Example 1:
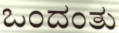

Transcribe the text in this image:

ಒಂದಂತು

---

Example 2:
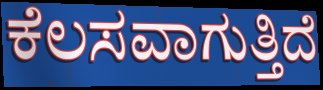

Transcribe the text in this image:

ಕೆಲಸವಾಗುತ್ತಿದೆ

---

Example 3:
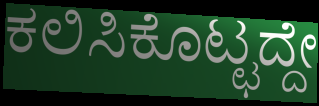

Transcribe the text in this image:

ಕಲಿಸಿಕೊಟ್ಟದ್ದೇ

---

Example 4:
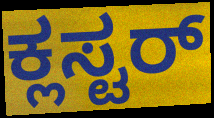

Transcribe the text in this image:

ಕ್ಲಸ್ಟರ್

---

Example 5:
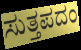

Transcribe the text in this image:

ಸುತ್ತಪದಂ